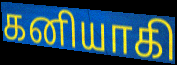
கனியாகி